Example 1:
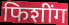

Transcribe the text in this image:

फिशींग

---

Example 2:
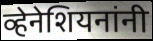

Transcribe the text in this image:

व्हेनेशियनांनी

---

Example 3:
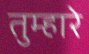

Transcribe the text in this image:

तुम्हारे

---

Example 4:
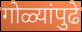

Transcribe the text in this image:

गोळ्यांपुढे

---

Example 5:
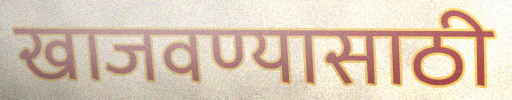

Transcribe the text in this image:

खाजवण्यासाठी